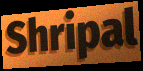
Shripal